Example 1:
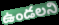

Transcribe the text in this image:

ఉండలని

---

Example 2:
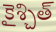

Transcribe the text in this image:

కైశ్చిత్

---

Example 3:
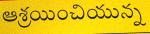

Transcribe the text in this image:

ఆశ్రయించియున్న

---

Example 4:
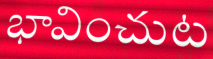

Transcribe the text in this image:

భావించుట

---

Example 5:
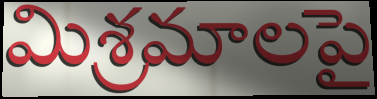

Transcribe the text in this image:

మిశ్రమాలపై